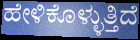
ಹೇಳಿಕೊಳ್ಳುತ್ತಿದೆ